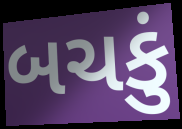
બચકું